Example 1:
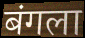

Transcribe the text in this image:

बंगला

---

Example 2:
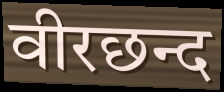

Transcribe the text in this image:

वीरछन्द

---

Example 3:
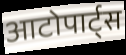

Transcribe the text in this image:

आटोपार्ट्स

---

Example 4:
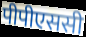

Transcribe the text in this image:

पीपीएससी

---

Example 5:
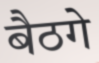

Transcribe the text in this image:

बैठगे